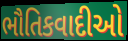
ભૌતિકવાદીઓ